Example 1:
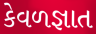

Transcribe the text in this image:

કેવળજ્ઞાત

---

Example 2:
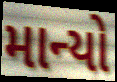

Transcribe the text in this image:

માન્યો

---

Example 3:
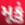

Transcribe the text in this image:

મૂકું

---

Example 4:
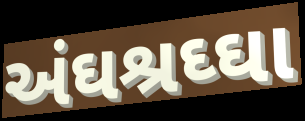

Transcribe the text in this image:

અંઘશ્રઘ્ઘા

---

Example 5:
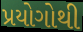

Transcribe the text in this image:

પ્રયોગોથી